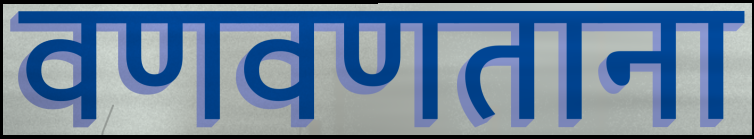
वणवणताना